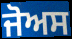
ਜੋਅਸ